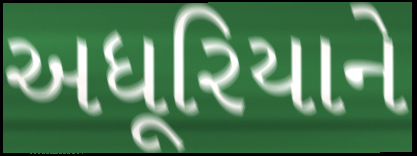
અધૂરિયાને